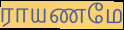
ராயணமே